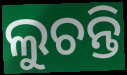
ଲୁଚନ୍ତି